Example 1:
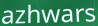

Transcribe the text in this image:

azhwars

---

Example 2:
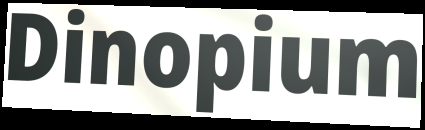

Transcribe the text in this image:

Dinopium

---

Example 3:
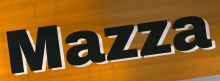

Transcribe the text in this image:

Mazza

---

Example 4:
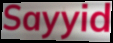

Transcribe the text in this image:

Sayyid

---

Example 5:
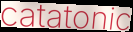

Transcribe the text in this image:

catatonic